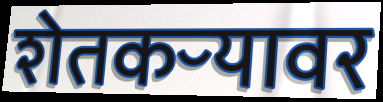
शेतकऱ्यावर